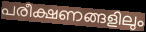
പരീക്ഷണങ്ങളിലും